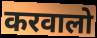
करवालो